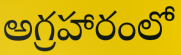
అగ్రహారంలో